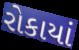
રોકાયાં